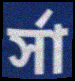
র্সা